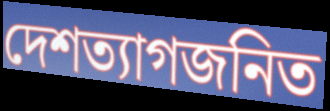
দেশত্যাগজনিত